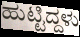
ಹುಟ್ಟಿದ್ದಳು